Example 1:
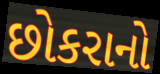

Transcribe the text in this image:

છોકરાનો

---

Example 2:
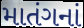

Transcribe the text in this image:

માતંગનાં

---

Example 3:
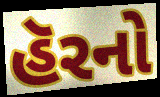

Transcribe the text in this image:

હૅરનો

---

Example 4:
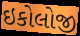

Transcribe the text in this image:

ઇકોલોજી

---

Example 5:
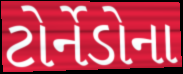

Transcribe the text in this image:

ટોર્નેડોના